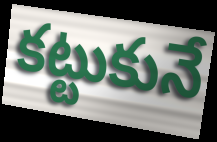
కట్టుకునే